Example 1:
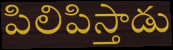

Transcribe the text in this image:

పిలిపిస్తాడు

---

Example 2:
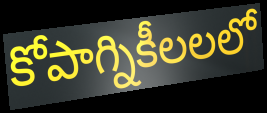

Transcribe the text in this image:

కోపాగ్నికీలలలో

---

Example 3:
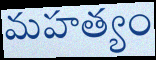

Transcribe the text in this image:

మహత్యం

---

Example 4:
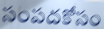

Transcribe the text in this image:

సంపదకోసం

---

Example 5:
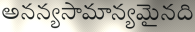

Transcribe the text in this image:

అనన్యసామాన్యమైనది